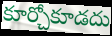
కూర్చోకూడదు